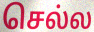
செல்ல